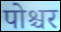
पोश्चर